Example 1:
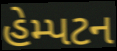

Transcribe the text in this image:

હેમ્પટન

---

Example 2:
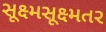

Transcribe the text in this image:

સૂક્ષ્મસૂક્ષ્મતર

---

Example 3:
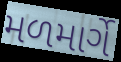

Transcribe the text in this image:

મળમાર્ગે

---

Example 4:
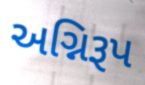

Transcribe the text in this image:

અગ્નિરૂપ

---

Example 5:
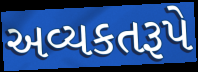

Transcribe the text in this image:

અવ્યકતરૂપે